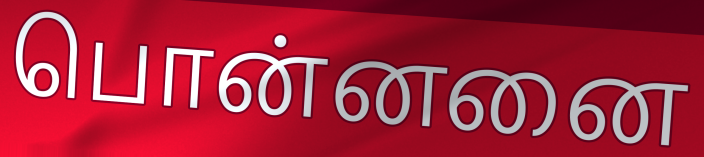
பொன்னனை